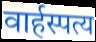
वार्हस्पत्य